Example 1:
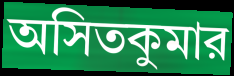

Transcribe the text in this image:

অসিতকুমার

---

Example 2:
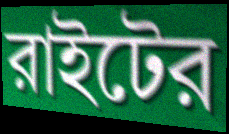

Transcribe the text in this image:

রাইটের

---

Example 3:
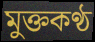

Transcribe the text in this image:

মুক্তকণ্ঠ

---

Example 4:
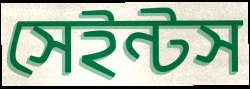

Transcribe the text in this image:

সেইন্টস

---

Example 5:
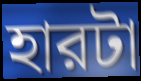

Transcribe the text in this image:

হারটা